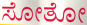
ಸೋತೋ